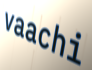
vaachi